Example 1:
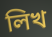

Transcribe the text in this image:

লিখ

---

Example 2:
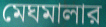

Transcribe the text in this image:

মেঘমালার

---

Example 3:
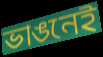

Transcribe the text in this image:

ভাঙনেই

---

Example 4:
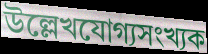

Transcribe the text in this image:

উল্লেখযোগ্যসংখ্যক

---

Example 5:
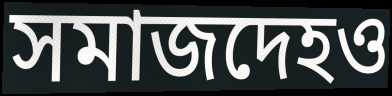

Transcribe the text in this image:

সমাজদেহও